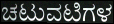
ಚಟುವಟಿಗಳ